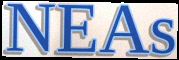
NEAs